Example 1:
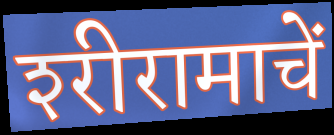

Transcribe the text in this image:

श्रीरामाचें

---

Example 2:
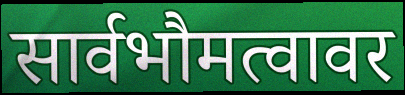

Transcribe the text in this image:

सार्वभौमत्वावर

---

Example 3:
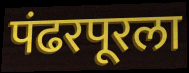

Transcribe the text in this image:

पंढरपूरला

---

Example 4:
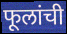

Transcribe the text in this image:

फूलांची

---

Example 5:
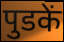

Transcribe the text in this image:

पुडकें